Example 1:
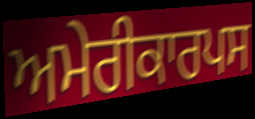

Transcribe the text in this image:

ਅਮੇਰੀਕਾਰਪਸ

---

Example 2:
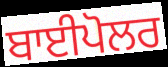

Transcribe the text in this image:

ਬਾਈਪੋਲਰ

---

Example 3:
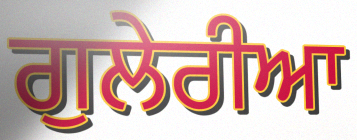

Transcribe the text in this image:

ਗੁਲੇਰੀਆ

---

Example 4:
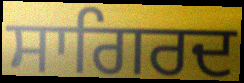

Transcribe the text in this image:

ਸਾਗਿਰਦ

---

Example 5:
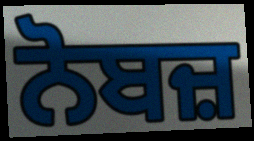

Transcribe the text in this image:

ਨੋਬਜ਼